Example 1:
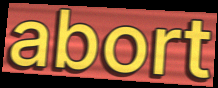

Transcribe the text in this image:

abort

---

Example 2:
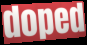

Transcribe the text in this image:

doped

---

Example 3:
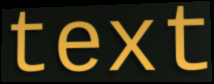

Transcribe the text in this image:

text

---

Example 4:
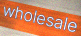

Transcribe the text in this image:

wholesale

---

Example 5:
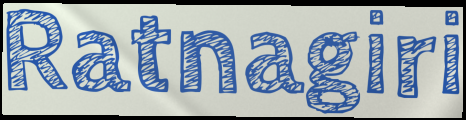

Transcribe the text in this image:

Ratnagiri